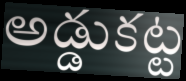
అడ్డుకట్ట